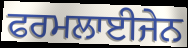
ਫਰਮਲਾਈਜੇਨ